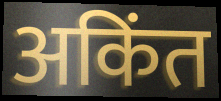
अकिंत